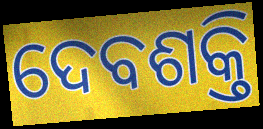
ଦେବଶକ୍ତି